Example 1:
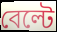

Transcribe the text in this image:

বেল্টে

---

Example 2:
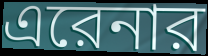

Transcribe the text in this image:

এরেনার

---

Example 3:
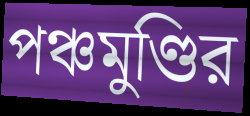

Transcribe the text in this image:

পঞ্চমুণ্ডির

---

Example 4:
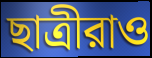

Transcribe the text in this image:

ছাত্রীরাও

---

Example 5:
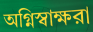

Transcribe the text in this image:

অগ্নিস্বাক্ষরা